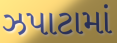
ઝપાટામાં